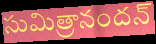
సుమిత్రానందన్